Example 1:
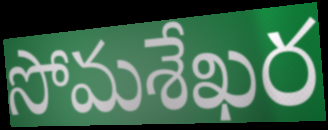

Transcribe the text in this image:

సోమశేఖర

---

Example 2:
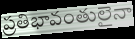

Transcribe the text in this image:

ప్రతిభావంతులైనా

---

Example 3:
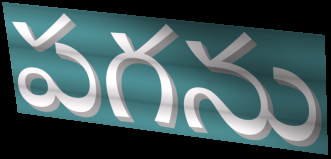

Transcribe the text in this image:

పగను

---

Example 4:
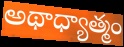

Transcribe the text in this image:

అథాధ్యాత్మం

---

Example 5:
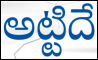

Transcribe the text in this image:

అట్టిదే